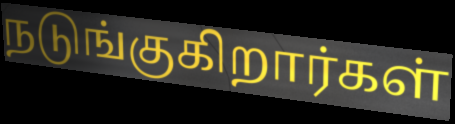
நடுங்குகிறார்கள்